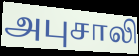
அபுசாலி